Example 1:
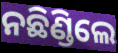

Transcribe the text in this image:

ନଛିଣ୍ଡିଲେ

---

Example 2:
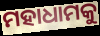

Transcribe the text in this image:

ମହାଧାମକୁ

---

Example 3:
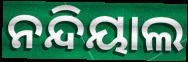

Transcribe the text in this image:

ନନ୍ଦିୟାଲ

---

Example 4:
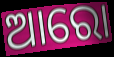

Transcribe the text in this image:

ଆରୋ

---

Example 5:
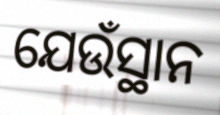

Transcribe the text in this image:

ଯେଉଁସ୍ଥାନ